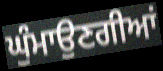
ਘੁੰਮਾਉਣਗੀਆਂ